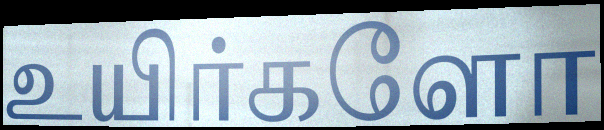
உயிர்களோ